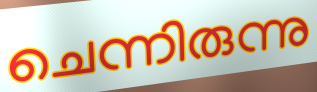
ചെന്നിരുന്നു